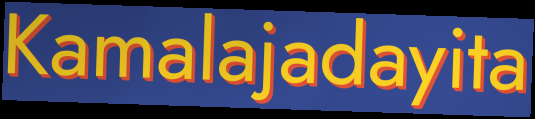
Kamalajadayita